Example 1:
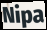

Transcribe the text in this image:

Nipa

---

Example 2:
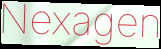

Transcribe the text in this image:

Nexagen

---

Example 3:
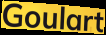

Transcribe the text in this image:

Goulart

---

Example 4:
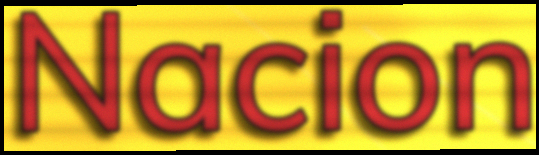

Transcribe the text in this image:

Nacion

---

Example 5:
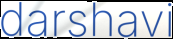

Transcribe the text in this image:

darshavi